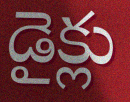
డైక్లు